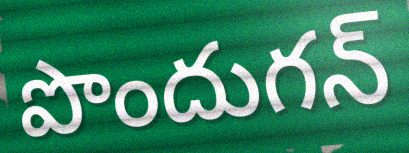
పొందుగన్